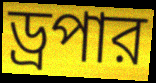
ড্রপার